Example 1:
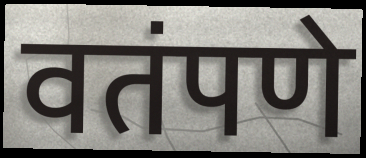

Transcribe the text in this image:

वतंपणे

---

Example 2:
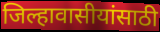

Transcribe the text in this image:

जिल्हावासीयांसाठी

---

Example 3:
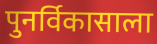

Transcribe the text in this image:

पुनर्विकासाला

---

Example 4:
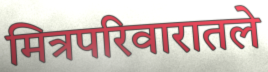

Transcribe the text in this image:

मित्रपरिवारातले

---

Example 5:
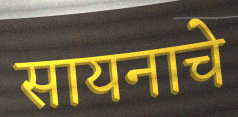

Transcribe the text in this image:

सायनाचे